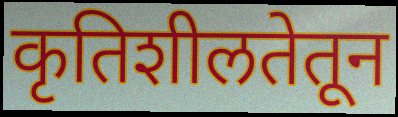
कृतिशीलतेतून